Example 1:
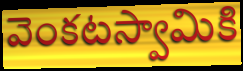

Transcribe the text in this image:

వెంకటస్వామికి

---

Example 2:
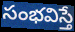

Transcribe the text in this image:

సంభవిస్తే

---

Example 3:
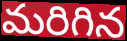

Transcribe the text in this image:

మరిగిన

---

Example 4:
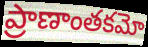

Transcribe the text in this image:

ప్రాణాంతకమో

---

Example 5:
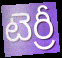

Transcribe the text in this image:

టెర్రీ